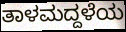
ತಾಳಮದ್ದಳೆಯ